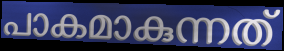
പാകമാകുന്നത്